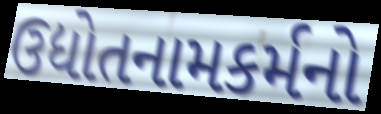
ઉદ્યોતનામકર્મનો